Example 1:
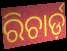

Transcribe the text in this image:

ରିଚାର୍ଡ଼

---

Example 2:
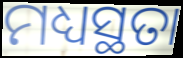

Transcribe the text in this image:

ମଧ୍ୟସ୍ଥତା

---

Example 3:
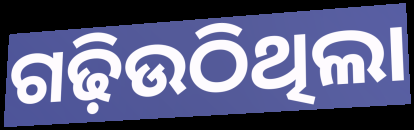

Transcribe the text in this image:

ଗଢ଼ିଉଠିଥିଲା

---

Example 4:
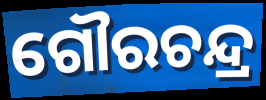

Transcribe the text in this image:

ଗୌରଚନ୍ଦ୍ର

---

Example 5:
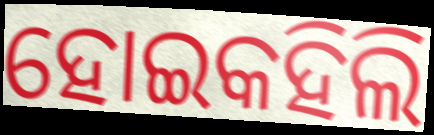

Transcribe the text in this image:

ହୋଇକହିଲି